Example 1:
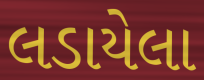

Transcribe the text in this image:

લડાયેલા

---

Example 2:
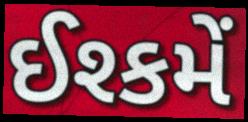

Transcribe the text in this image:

ઈશ્કમેં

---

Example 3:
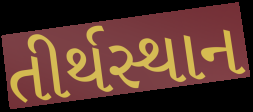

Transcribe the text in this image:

તીર્થસ્થાન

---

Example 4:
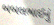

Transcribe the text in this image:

બબલભાઈનું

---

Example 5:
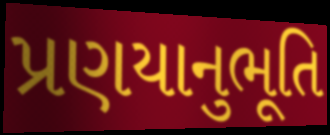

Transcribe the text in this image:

પ્રણયાનુભૂતિ